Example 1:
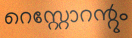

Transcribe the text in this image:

റെസ്റ്റോറന്റും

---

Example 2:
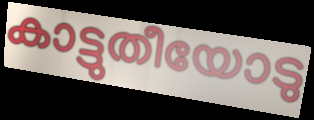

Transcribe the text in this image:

കാട്ടുതീയോടു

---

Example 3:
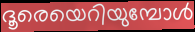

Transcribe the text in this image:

ദൂരെയെറിയുമ്പോൾ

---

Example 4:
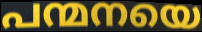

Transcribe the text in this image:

പന്മനയെ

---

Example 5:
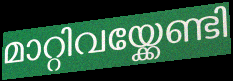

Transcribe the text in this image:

മാറ്റിവയ്ക്കേണ്ടി